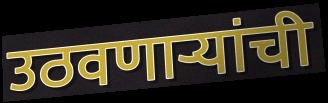
उठवणाऱ्यांची